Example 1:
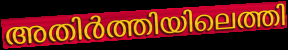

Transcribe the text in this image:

അതിർത്തിയിലെത്തി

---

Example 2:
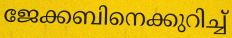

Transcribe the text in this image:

ജേക്കബിനെക്കുറിച്ച്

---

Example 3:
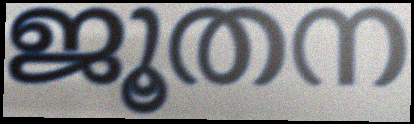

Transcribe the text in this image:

ജൂതന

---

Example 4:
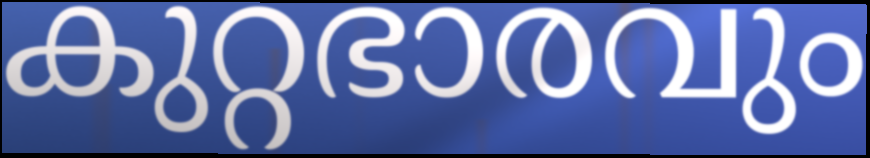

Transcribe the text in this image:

കുറ്റഭാരവും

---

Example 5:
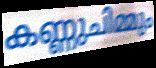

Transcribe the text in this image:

കണ്ണുചിമ്മും